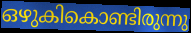
ഒഴുകികൊണ്ടിരുന്നു